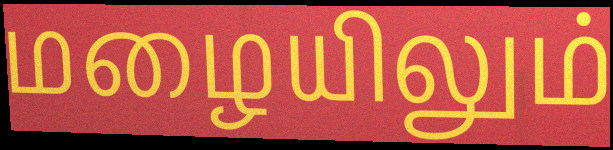
மழையிலும்